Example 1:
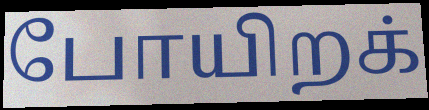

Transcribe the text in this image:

போயிறக்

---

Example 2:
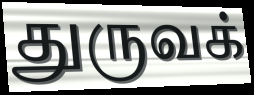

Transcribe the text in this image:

துருவக்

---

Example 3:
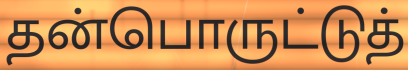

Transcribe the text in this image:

தன்பொருட்டுத்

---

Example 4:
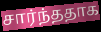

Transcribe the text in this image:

சார்ந்ததாக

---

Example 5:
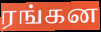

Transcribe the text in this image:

ரங்கன